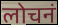
लोचनं